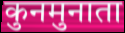
कुनमुनाता